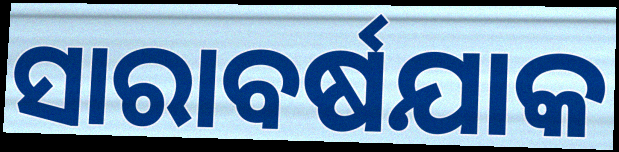
ସାରାବର୍ଷଯାକ